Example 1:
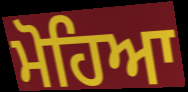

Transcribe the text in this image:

ਮੋਹਿਆ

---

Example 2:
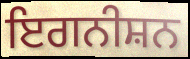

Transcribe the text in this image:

ਇਗਨੀਸ਼ਨ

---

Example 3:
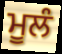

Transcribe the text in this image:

ਮੂਲੰ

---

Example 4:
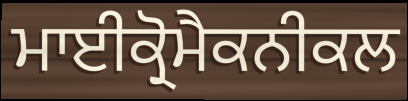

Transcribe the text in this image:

ਮਾਈਕ੍ਰੋਮੈਕਨੀਕਲ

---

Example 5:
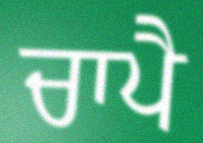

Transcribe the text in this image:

ਚਾਪੈ